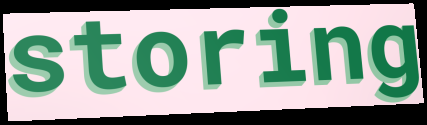
storing